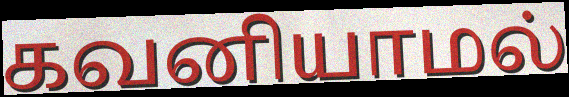
கவனியாமல்